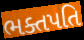
ભક્તપતિ